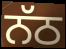
ਨੱਠ